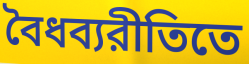
বৈধব্যরীতিতে